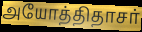
அயோத்திதாசர்